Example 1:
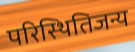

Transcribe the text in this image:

परिस्थितिजन्य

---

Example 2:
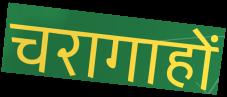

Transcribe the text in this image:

चरागाहों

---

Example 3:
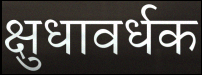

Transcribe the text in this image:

क्षुधावर्धक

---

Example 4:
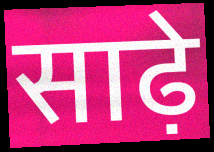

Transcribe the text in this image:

साढ़े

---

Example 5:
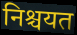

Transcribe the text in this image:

निश्चयत